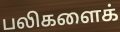
பலிகளைக்